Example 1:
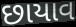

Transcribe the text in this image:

છાયાવ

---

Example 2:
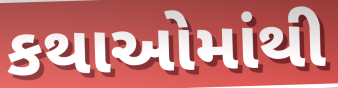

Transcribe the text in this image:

કથાઓમાંથી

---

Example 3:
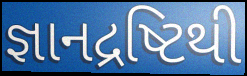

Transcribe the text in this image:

જ્ઞાનદ્રષ્ટિથી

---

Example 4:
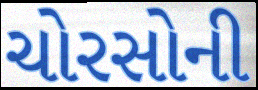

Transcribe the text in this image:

ચોરસોની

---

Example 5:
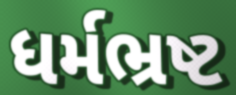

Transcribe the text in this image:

ધર્મભ્રષ્ટ